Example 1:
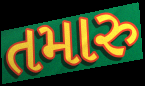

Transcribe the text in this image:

તમારુ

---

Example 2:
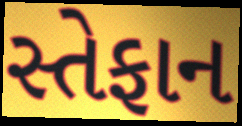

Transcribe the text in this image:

સ્તેફાન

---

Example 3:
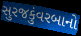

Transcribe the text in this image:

સુરજકુંવરબાનો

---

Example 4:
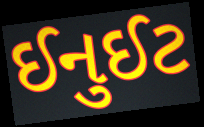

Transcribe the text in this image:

ઈનુઈટ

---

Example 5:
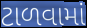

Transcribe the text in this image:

ટાળવામાં